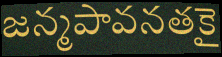
జన్మపావనతకై